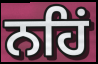
ਨਹਿਂ